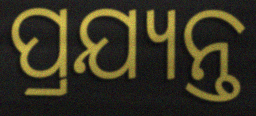
ପ୍ରଯ୍ୟନ୍ତ